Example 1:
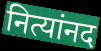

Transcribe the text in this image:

नित्यांनद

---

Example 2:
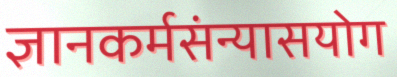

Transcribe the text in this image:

ज्ञानकर्मसंन्यासयोग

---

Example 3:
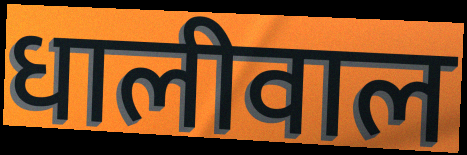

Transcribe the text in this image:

धालीवाल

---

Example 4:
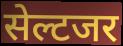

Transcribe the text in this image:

सेल्टजर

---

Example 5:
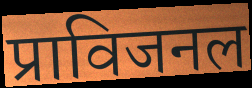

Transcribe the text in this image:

प्राविजनल